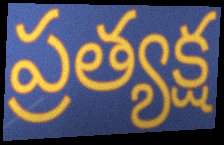
ప్రత్యక్ష